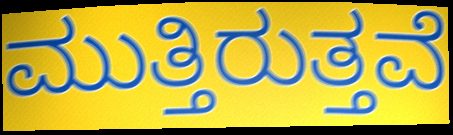
ಮುತ್ತಿರುತ್ತವೆ